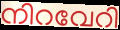
നിറവേറി